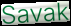
Savak